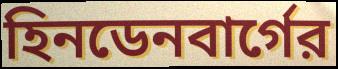
হিনডেনবার্গের